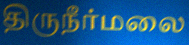
திருநீர்மலை